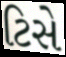
ટિસે